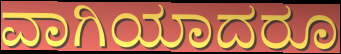
ವಾಗಿಯಾದರೂ